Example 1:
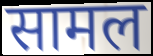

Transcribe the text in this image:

सामल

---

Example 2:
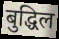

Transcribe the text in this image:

बुद्धिल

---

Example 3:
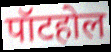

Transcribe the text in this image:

पॉटहोल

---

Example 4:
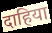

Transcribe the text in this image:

दाहिया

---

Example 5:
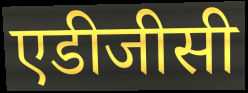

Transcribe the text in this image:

एडीजीसी